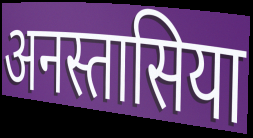
अनस्तासिया